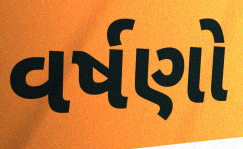
વર્ષણો